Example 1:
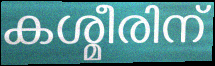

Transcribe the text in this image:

കശ്മീരിന്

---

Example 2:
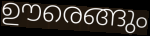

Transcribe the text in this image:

ഊരെങ്ങും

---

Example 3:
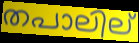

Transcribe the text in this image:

തപാലില്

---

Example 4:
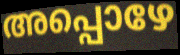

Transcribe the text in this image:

അപ്പൊഴേ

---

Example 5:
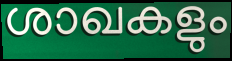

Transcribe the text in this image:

ശാഖകളും